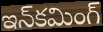
ఇన్‌కమింగ్